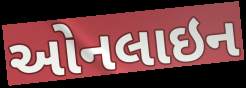
ઓનલાઇન